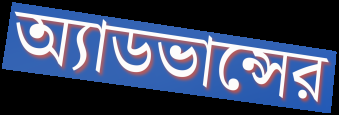
অ্যাডভান্সের